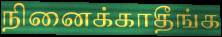
நினைக்காதீங்க